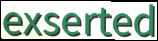
exserted